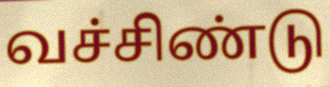
வச்சிண்டு